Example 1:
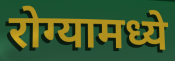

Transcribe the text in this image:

रोग्यामध्ये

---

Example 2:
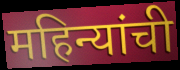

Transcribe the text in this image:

महिन्यांची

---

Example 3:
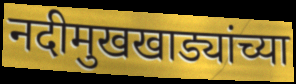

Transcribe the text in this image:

नदीमुखखाड्यांच्या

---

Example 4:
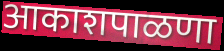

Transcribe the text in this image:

आकाशपाळणा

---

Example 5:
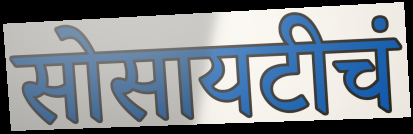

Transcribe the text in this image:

सोसायटीचं